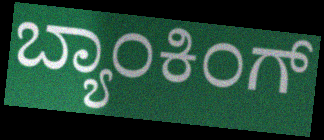
ಬ್ಯಾಂಕಿಂಗ್